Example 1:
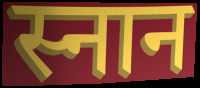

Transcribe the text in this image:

स्‍नान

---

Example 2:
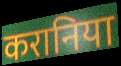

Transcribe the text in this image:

करानिया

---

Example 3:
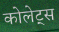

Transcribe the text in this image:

कोलेट्स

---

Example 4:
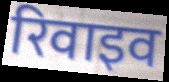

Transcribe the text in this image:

रिवाइव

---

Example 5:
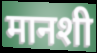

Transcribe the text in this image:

मानशी